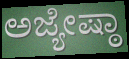
ಅಜ್ಯೇಷ್ಠಾ